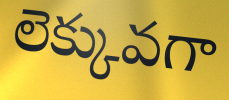
లెక్కువగా